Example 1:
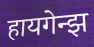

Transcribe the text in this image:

हायगेन्झ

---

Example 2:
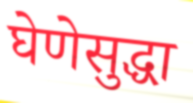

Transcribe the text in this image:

घेणेसुद्धा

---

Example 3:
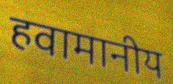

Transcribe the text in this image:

हवामानीय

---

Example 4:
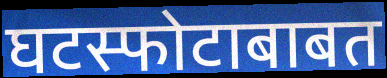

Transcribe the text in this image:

घटस्फोटाबाबत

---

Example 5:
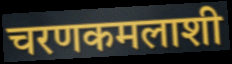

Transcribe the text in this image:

चरणकमलाशी